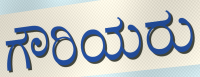
ಗೌರಿಯರು